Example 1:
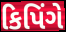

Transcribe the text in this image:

કિપિંગે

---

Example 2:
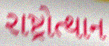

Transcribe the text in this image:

રાષ્ટ્રોત્થાન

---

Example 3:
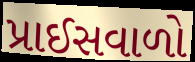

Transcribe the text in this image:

પ્રાઈસવાળો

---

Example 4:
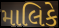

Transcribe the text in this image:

માલિકે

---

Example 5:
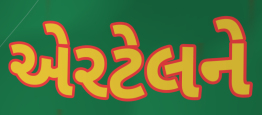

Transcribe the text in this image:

એરટેલને